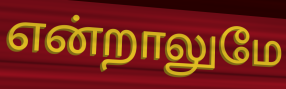
என்றாலுமே